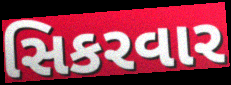
સિકરવાર